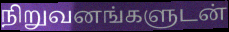
நிறுவனங்களுடன்